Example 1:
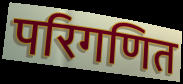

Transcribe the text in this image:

परिगणित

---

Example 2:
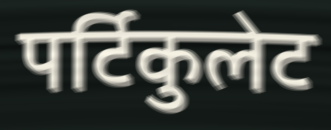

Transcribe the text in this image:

पर्टिकुलेट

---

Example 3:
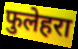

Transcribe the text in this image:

फुलेहरा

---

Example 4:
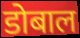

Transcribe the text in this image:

डोबाल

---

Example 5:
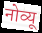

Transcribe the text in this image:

नोव्यू